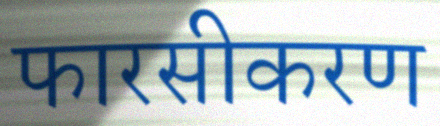
फारसीकरण